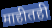
माहीतही